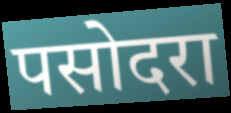
पसोदरा